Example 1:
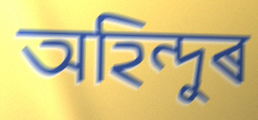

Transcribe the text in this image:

অহিন্দুৰ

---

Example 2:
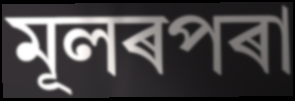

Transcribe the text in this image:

মূলৰপৰা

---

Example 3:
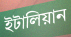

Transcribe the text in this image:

ইটালিয়ান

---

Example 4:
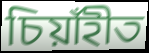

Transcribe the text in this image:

চিয়াঁহীত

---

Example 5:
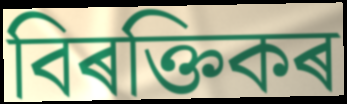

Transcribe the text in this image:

বিৰক্তিকৰ